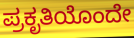
ಪ್ರಕೃತಿಯೊಂದೇ